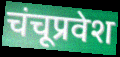
चंचूप्रवेश